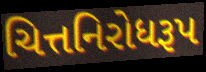
ચિત્તનિરોધરૂપ